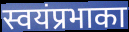
स्वयंप्रभाका